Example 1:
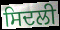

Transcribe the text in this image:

ਸਿਦਲੀ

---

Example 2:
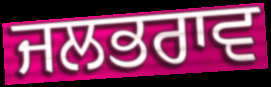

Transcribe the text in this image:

ਜਲਭਰਾਵ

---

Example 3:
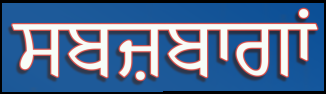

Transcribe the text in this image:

ਸਬਜ਼ਬਾਗਾਂ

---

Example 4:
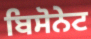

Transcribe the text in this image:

ਬਿਸੋਨੇਟ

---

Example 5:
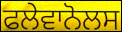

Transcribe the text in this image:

ਫਲੇਵਾਨੋਲਸ